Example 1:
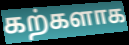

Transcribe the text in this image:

கற்களாக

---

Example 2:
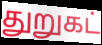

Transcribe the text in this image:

துறுகட்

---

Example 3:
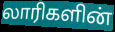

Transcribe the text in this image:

லாரிகளின்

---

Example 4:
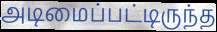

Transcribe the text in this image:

அடிமைப்பட்டிருந்த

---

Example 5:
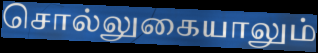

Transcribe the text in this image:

சொல்லுகையாலும்